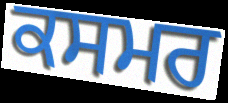
ਕਸਮਰ